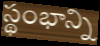
స్థంభాన్ని